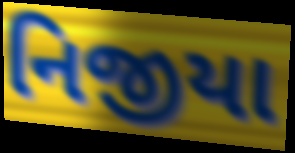
નિજીયા